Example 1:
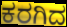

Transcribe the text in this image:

ಕರಗಿದ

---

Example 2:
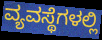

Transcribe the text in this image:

ವ್ಯವಸ್ಥೆಗಳಲ್ಲಿ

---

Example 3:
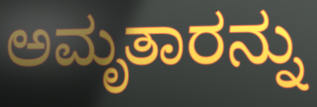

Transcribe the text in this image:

ಅಮೃತಾರನ್ನು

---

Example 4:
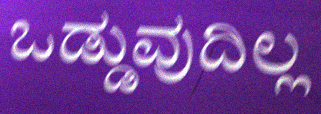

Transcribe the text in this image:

ಒಡ್ಡುವುದಿಲ್ಲ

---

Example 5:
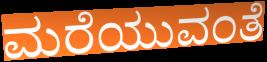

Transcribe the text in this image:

ಮರೆಯುವಂತೆ